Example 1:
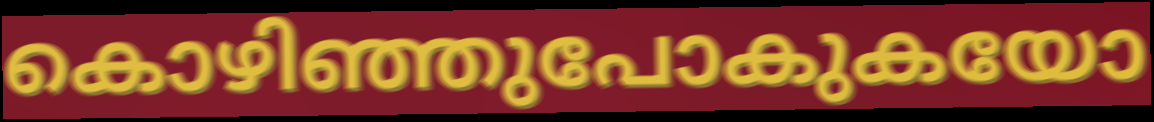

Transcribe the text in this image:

കൊഴിഞ്ഞുപോകുകയോ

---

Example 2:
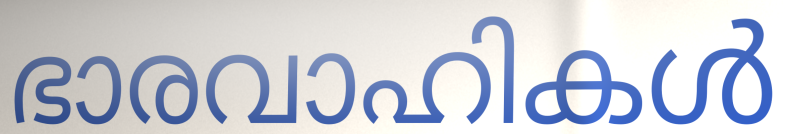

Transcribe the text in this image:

ഭാരവാഹികൾ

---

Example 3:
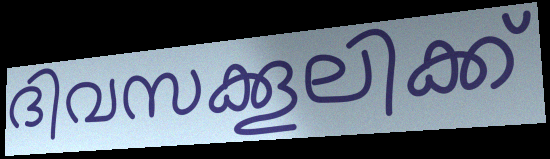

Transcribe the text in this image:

ദിവസക്കൂലിക്ക്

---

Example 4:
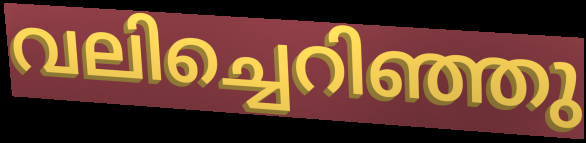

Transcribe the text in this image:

വലിച്ചെറിഞ്ഞു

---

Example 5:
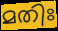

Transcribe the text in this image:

മതിഃ